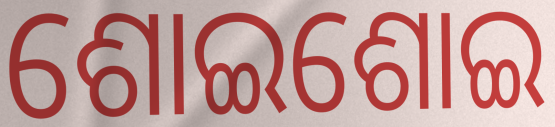
ଶୋଇଶୋଇ